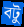
বটু